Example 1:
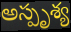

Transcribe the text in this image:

అస్పృశ్య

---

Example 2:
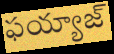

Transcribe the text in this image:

ఫయ్యాజ్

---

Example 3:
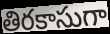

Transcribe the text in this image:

తిరకాసుగా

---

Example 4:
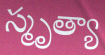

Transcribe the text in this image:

స్మృత్యా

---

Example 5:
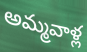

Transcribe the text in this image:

అమ్మవాళ్ల